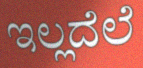
ಇಲ್ಲದೆಲೆ